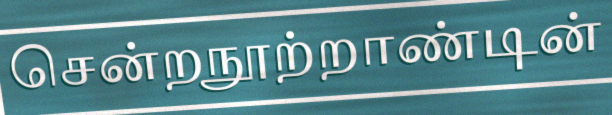
சென்றநூற்றாண்டின்